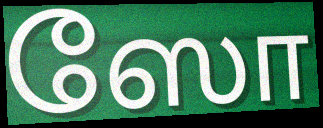
ஸோ